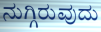
ನುಗ್ಗಿರುವುದು